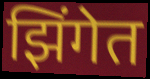
झिंगेत